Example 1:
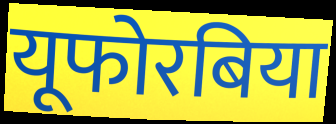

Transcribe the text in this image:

यूफोरबिया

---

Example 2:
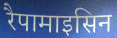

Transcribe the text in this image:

रैपामाइसिन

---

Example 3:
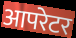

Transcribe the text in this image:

आपरेटर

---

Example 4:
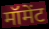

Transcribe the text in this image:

मॉमेंट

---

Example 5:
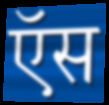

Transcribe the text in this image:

ऍस